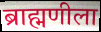
ब्राह्मणीला